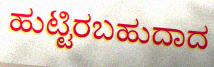
ಹುಟ್ಟಿರಬಹುದಾದ